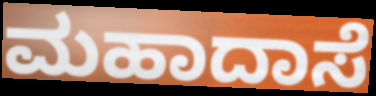
ಮಹಾದಾಸೆ